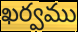
ఖర్వము